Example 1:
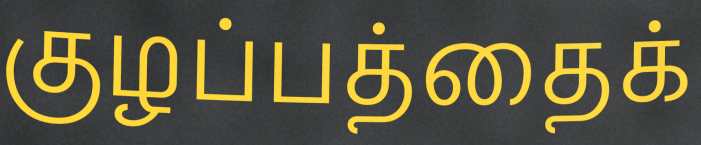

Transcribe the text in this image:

குழப்பத்தைக்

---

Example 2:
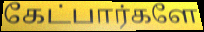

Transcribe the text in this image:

கேட்பார்களே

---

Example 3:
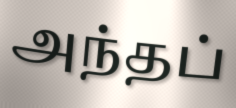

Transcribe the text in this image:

அந்தப்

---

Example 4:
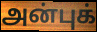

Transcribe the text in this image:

அன்புக்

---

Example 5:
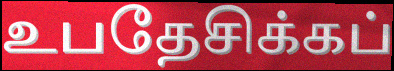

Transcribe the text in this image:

உபதேசிக்கப்